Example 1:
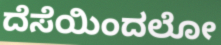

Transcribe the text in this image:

ದೆಸೆಯಿಂದಲೋ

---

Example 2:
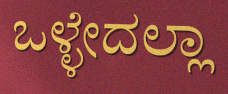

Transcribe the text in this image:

ಒಳ್ಳೇದಲ್ಲಾ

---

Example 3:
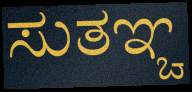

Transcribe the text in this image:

ಸುತಞ್ಚ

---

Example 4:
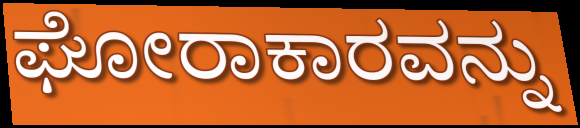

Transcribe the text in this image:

ಘೋರಾಕಾರವನ್ನು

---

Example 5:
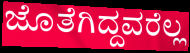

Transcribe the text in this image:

ಜೊತೆಗಿದ್ದವರೆಲ್ಲ